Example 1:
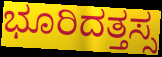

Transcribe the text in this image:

ಭೂರಿದತ್ತಸ್ಸ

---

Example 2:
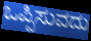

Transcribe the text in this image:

ಒಪ್ಪಿಸುವದು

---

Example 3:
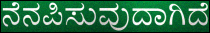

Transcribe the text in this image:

ನೆನಪಿಸುವುದಾಗಿದೆ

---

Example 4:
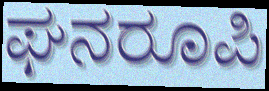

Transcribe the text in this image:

ಘನರೂಪಿ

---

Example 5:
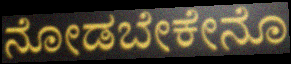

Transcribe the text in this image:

ನೋಡಬೇಕೇನೊ